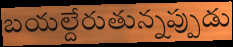
బయల్దేరుతున్నప్పుడు